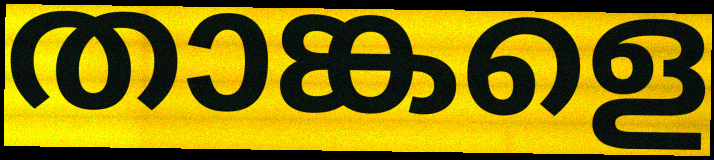
താങ്കളെ